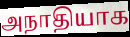
அநாதியாக